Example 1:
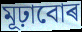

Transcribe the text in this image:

মূঢ়াবোৰ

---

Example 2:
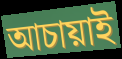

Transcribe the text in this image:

আচায়াই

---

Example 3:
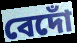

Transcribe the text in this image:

বেদোঁ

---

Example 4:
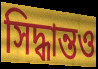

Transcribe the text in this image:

সিদ্ধান্তও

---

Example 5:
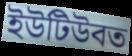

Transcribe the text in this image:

ইউটিউবত